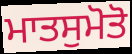
ਮਾਤਸੁਮੋਤੋ